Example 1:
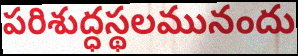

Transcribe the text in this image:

పరిశుద్ధస్థలమునందు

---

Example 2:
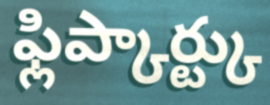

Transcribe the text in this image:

ఫ్లిప్కార్ట్కు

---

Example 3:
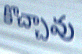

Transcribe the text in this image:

కొచ్చావు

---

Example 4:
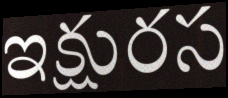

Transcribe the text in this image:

ఇక్షురస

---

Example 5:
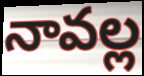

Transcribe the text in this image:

నావల్ల